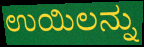
ಉಯಿಲನ್ನು